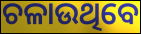
ଚଳାଉଥିବେ